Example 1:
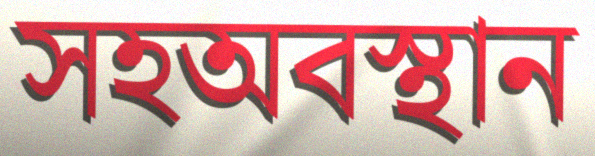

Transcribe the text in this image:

সহঅবস্থান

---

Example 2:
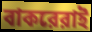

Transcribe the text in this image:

বাকরেরাই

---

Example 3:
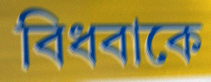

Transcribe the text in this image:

বিধবাকে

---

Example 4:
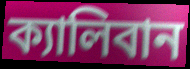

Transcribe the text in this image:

ক্যালিবান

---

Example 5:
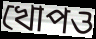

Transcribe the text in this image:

খোপও